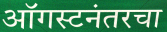
ऑगस्टनंतरचा